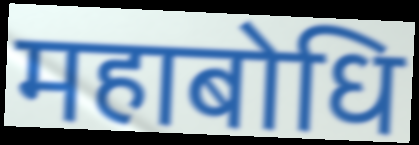
महाबोधि